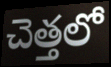
చెత్తలో